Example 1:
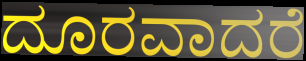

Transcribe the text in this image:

ದೂರವಾದರೆ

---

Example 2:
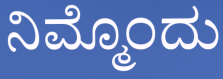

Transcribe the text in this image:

ನಿಮ್ಮೊಂದು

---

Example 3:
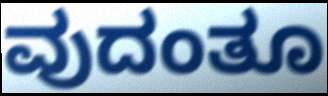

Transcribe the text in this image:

ವುದಂತೂ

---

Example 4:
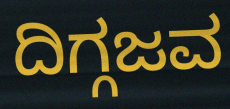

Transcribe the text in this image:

ದಿಗ್ಗಜವ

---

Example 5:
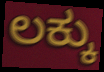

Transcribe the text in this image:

ಲಕ್ಕು